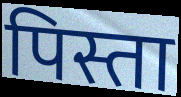
पिस्ता